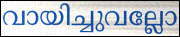
വായിച്ചുവല്ലോ